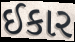
ઈકાર